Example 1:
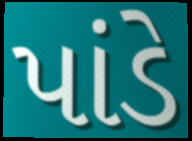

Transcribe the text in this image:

પાંડે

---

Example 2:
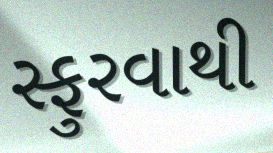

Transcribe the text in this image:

સ્ફુરવાથી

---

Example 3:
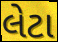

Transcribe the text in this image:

લેટા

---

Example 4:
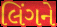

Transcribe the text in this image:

લિંગને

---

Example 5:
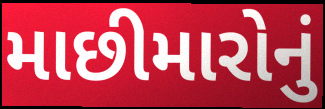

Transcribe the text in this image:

માછીમારોનું